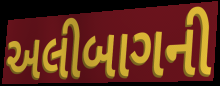
અલીબાગની